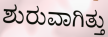
ಶುರುವಾಗಿತ್ತು